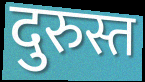
दुरुस्त